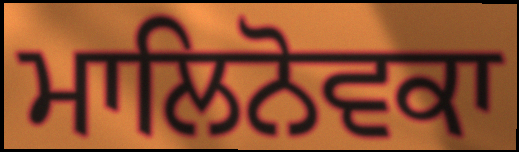
ਮਾਲਿਨੋਵਕਾ